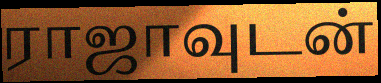
ராஜாவுடன்